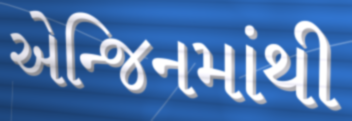
એન્જિનમાંથી